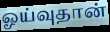
ஓய்வுதான்